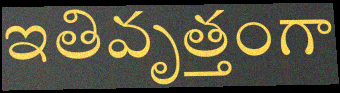
ఇతివృత్తంగా